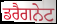
ਡਰੈਗਨੇਟ